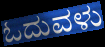
ಓದುವಳು